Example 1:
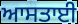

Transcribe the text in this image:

ਆਸਤਾਈ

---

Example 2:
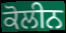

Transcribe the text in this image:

ਕੋਲੀਨ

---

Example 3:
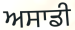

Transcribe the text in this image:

ਅਸਾਡੀ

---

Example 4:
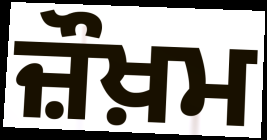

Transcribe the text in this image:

ਜ਼ੌਖ਼ਮ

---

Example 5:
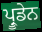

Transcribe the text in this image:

ਪ੍ਰੂਡੇਨ